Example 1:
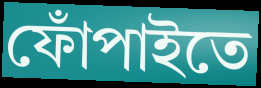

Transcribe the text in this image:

ফোঁপাইতে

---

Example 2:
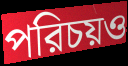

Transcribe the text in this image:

পরিচয়ও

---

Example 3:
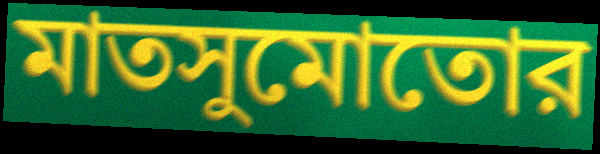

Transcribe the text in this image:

মাতসুমোতোর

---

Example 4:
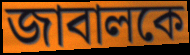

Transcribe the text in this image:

জাবালকে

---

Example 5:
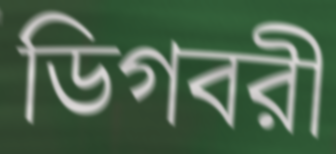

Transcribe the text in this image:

ডিগবরী